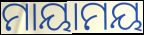
ମାୟାମୟ